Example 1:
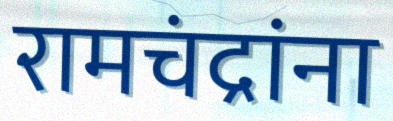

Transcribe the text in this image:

रामचंद्रांना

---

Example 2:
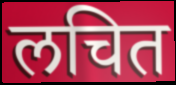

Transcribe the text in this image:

लचित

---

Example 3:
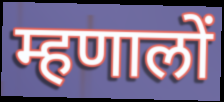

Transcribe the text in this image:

म्हणालों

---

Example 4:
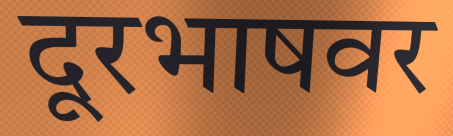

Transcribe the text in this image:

दूरभाषवर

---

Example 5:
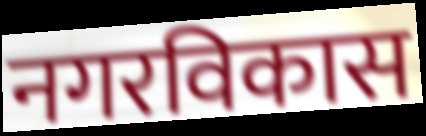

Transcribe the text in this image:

नगरविकास